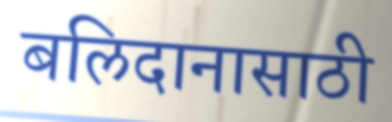
बलिदानासाठी